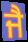
ਜੈ